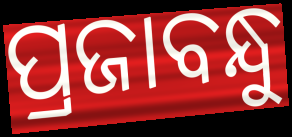
ପ୍ରଜାବନ୍ଧୁ